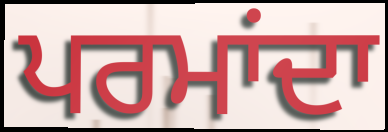
ਪਰਮਾਂਦਾ